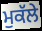
ਮੁਕੱਲੇ